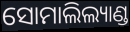
ସୋମାଲିଲ୍ୟାଣ୍ଡ